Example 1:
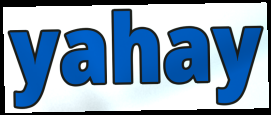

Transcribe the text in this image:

yahay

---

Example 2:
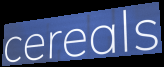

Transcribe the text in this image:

cereals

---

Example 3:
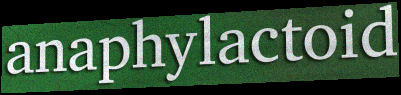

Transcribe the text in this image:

anaphylactoid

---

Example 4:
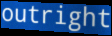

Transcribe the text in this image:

outright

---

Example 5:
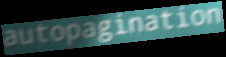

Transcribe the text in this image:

autopagination